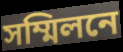
সম্মিলনে